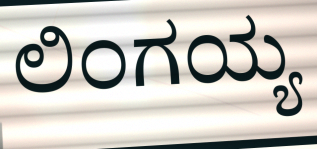
ಲಿಂಗಯ್ಯ